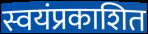
स्वयंप्रकाशित